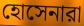
হোসেনারা